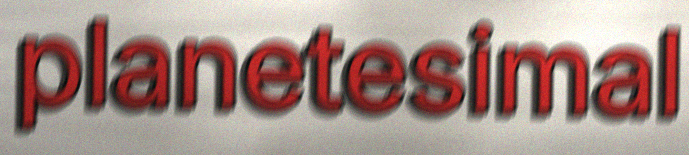
planetesimal